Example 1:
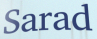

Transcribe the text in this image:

Sarad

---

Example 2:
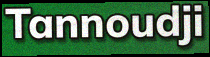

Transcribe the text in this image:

Tannoudji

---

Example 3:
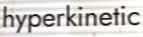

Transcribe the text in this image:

hyperkinetic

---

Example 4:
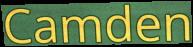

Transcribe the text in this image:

Camden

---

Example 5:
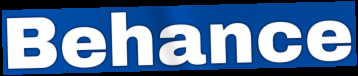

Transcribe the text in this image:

Behance